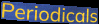
Periodicals